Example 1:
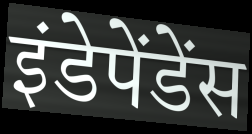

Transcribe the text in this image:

इंडेपेंडेंस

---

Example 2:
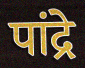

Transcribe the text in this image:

पांद्रे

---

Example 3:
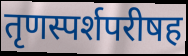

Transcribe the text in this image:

तृणस्पर्शपरीषह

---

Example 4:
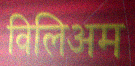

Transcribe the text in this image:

विलिअम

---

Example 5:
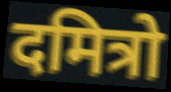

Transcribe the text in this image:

दमित्रो